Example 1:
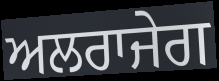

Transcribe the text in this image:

ਅਲਰਾਜੇਗ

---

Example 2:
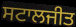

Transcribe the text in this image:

ਸਟਾਲਜੀਤ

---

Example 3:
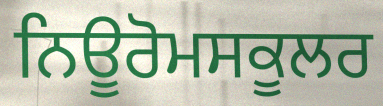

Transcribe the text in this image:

ਨਿਊਰੋਮਸਕੂਲਰ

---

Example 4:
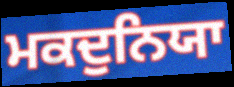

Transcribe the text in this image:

ਮਕਦੁਨਿਯਾ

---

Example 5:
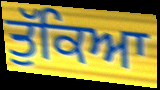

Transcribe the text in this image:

ਤੁੱਕਿਆ